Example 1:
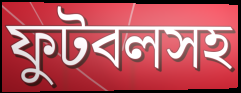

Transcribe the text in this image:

ফুটবলসহ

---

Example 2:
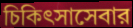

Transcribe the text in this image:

চিকিৎসাসেবার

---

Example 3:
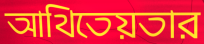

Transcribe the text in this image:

আথিতেয়তার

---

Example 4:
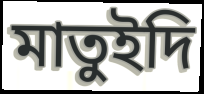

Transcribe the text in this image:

মাতুইদি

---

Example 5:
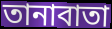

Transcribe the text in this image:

তানাবাতা